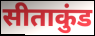
सीताकुंड